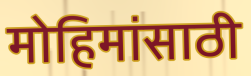
मोहिमांसाठी